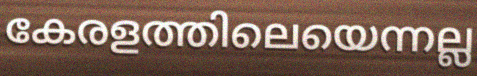
കേരളത്തിലെയെന്നല്ല